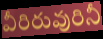
వీరిరువురినీ